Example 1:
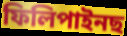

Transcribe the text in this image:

ফিলিপাইনছ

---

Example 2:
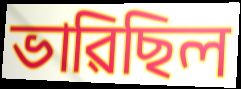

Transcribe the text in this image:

ভাৱিছিল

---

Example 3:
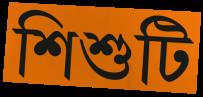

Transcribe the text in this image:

শিশুটি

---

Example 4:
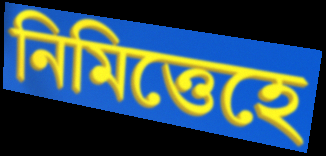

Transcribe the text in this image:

নিমিত্তেহে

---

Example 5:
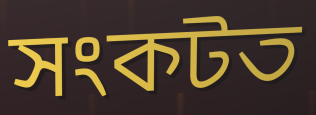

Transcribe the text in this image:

সংকটত